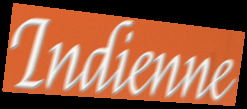
Indienne